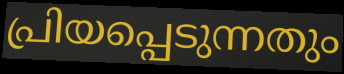
പ്രിയപ്പെടുന്നതും